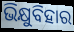
ଭିକ୍ଷୁବିହାର